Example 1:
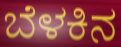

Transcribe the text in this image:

ಬೆಳಕಿನ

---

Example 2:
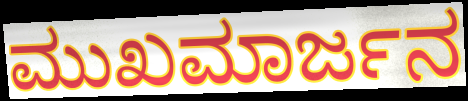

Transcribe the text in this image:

ಮುಖಮಾರ್ಜನ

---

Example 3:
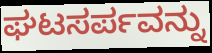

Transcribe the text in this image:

ಘಟಸರ್ಪವನ್ನು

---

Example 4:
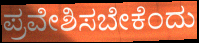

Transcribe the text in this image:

ಪ್ರವೇಶಿಸಬೇಕೆಂದು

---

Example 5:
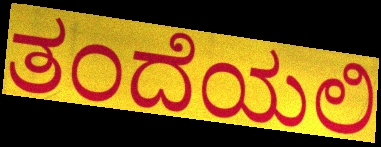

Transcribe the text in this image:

ತಂದೆಯಲಿ